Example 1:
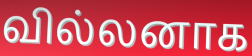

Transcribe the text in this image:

வில்லனாக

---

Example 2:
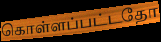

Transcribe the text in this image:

கொள்ளப்பட்டதோ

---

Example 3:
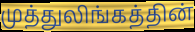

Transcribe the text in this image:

முத்துலிங்கத்தின்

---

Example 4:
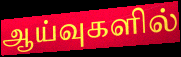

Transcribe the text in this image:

ஆய்வுகளில்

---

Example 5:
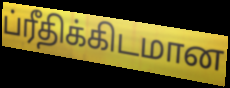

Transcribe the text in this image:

ப்ரீதிக்கிடமான